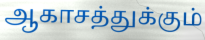
ஆகாசத்துக்கும்